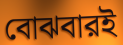
বোঝবারই